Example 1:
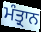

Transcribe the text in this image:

ਮੰਤ੍ਰਾਨ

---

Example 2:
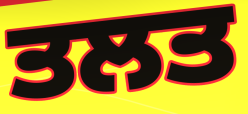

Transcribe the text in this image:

ਤਲਤ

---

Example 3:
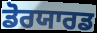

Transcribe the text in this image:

ਡੋਰਯਾਰਡ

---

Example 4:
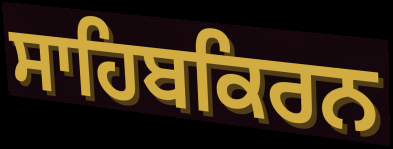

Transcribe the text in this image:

ਸਾਹਿਬਕਿਰਨ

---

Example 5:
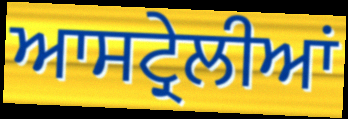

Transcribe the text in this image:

ਆਸਟ੍ਰੇਲੀਆਂ